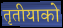
तृतीयाको